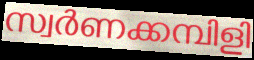
സ്വർണക്കമ്പിളി